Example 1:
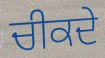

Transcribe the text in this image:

ਚੀਕਦੇ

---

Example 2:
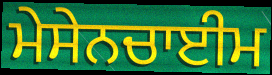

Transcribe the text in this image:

ਮੇਸੇਨਚਾਈਮ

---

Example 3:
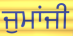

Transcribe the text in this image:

ਜੁਮਾਂਜੀ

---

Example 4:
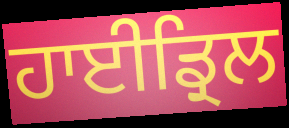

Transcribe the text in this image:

ਹਾਈਡ੍ਰਿਲ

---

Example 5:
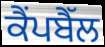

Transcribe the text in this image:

ਕੈਂਪਬੈੱਲ